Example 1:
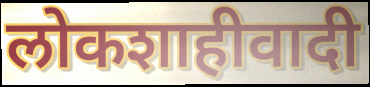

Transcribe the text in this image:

लोकशाहीवादी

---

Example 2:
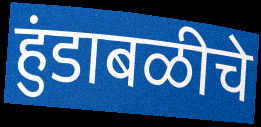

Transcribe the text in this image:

हुंडाबळीचे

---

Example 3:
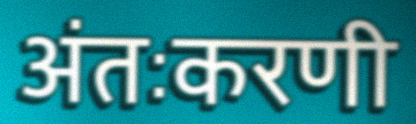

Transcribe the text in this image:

अंतःकरणी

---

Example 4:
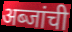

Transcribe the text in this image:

अब्जांची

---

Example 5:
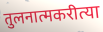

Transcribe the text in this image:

तुलनात्मकरीत्या